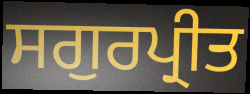
ਸਗੁਰਪ੍ਰੀਤ